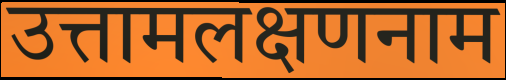
उत्तामलक्षणनाम